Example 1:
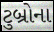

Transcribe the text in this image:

ટુબ્રોના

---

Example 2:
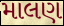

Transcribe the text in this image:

માલણ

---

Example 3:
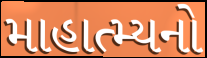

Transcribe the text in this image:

માહાત્મ્યનો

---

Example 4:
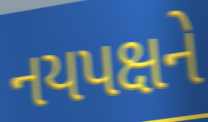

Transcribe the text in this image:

નયપક્ષને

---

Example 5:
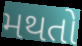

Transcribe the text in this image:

મથતો